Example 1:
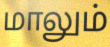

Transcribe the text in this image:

மாலும்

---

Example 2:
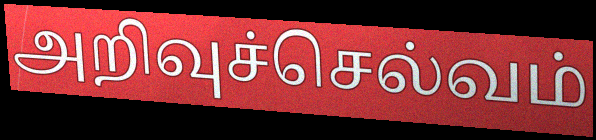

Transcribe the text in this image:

அறிவுச்செல்வம்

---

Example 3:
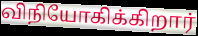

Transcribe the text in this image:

விநியோகிக்கிறார்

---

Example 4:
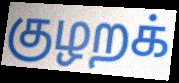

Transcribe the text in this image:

குழறக்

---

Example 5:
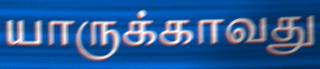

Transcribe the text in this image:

யாருக்காவது